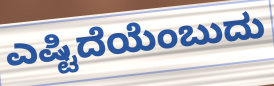
ಎಷ್ಟಿದೆಯೆಂಬುದು